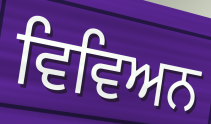
ਵਿਵਿਅਨ